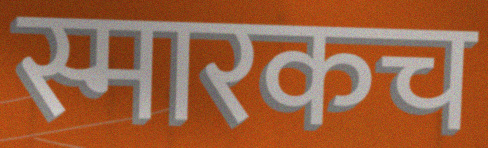
स्मारकच